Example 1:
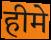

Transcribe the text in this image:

हीमे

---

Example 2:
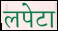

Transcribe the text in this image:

लपेटा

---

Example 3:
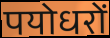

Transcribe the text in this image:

पयोधरों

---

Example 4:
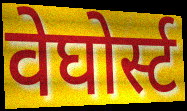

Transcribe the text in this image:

वेघोर्स्ट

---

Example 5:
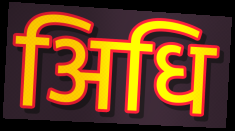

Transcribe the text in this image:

अिधि